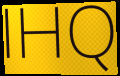
IHQ